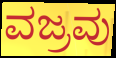
ವಜ್ರವು